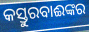
କସ୍ତୁରବାଈଙ୍କର